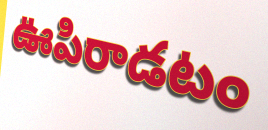
ఊపిరాడటం